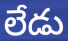
లేడు